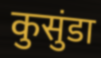
कुसुंडा